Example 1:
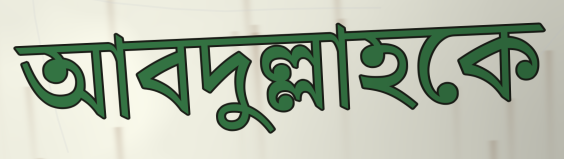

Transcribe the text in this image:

আবদুল্লাহকে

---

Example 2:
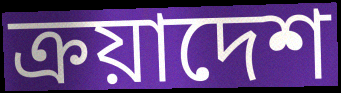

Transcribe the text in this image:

ক্রয়াদেশ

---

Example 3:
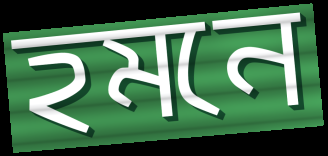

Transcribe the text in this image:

হমনে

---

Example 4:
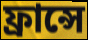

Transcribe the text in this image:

ফ্রান্সে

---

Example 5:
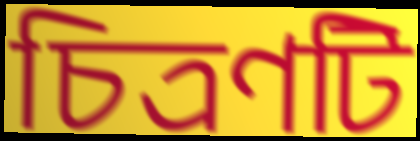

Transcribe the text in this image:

চিত্রণটি